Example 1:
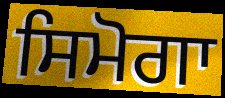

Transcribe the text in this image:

ਸਿਮੋਗਾ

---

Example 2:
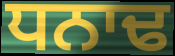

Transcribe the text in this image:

ਧਨਾਢ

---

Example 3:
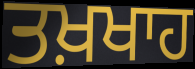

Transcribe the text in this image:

ਤਖ਼ਖਾਹ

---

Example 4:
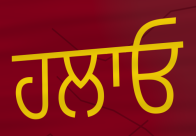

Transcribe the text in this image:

ਹਲਾਓ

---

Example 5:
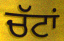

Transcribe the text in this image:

ਚੱਟਾਂ